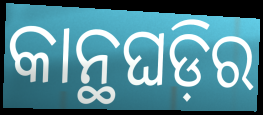
କାନ୍ଥଘଡ଼ିର